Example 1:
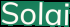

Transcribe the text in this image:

Solai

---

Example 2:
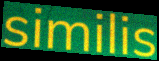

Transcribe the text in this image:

similis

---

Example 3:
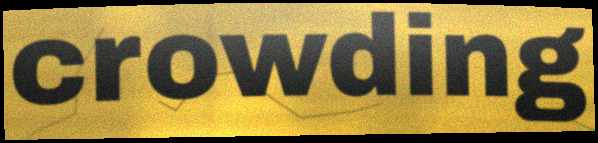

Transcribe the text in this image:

crowding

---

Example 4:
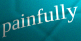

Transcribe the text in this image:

painfully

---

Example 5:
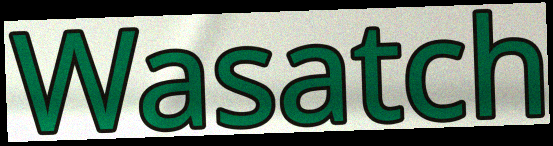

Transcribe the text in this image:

Wasatch